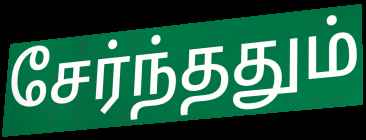
சேர்ந்ததும்